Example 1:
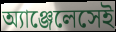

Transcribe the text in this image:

অ্যাঞ্জেলেসেই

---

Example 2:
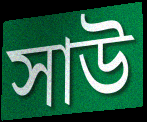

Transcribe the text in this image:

সাউ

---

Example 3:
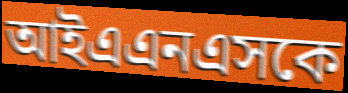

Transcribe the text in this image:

আইএএনএসকে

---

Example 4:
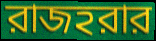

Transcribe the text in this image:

রাজহরার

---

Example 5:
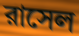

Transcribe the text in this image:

রাসেল